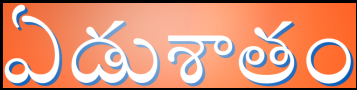
ఏడుశాతం